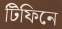
টিফিনে